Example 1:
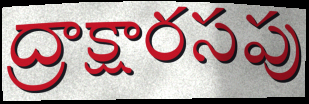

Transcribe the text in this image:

ద్రాక్షారసపు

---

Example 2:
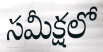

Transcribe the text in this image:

సమీక్షలో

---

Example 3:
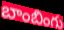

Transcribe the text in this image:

బాంబింగు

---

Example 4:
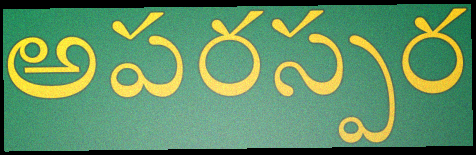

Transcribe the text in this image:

అపరస్పర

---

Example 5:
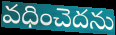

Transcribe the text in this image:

వధించెదను